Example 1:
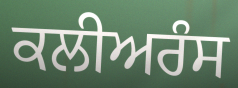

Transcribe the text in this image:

ਕਲੀਅਰੰਸ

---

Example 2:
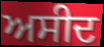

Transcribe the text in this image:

ਅਸੀਦ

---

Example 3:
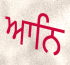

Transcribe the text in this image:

ਆਨਿ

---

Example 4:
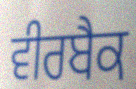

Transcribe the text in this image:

ਵੀਰਬੈਕ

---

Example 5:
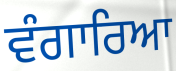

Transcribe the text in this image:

ਵੰਗਾਰਿਆ